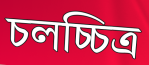
চলচ্চিত্র